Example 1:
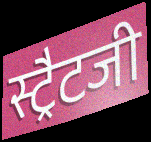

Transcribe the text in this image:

स्ट्रैटजी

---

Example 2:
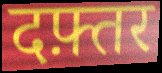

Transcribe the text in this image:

दफ़्तर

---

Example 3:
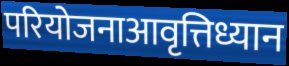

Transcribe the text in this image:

परियोजनाआवृत्तिध्यान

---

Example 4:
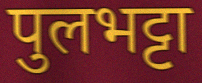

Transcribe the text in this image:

पुलभट्टा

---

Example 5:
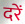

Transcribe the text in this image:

दरें